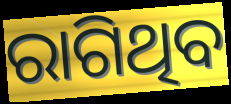
ରାଗିଥିବ